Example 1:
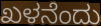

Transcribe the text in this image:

ಖಳನೆಂದು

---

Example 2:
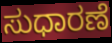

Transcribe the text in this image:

ಸುಧಾರಣೆ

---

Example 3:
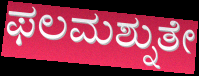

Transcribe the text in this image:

ಫಲಮಶ್ನುತೇ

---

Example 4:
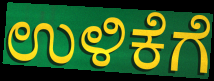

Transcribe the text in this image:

ಉಳಿಕೆಗೆ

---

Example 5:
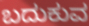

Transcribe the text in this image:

ಬದುಕುವ